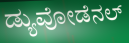
ಡ್ಯುವೋಡೆನಲ್